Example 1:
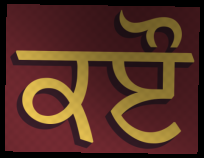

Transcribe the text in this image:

ਕੲੌ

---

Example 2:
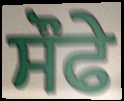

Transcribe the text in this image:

ਸੌਫੇ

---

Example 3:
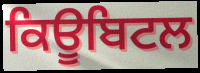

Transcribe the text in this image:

ਕਿਊਬਿਟਲ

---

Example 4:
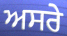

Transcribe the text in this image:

ਅਸਰੇ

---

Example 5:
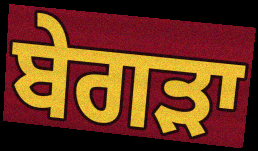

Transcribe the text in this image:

ਬੇਗੜਾ